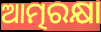
ଆତ୍ମରକ୍ଷା